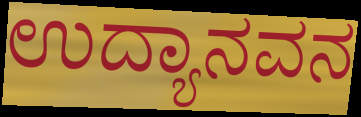
ಉದ್ಯಾನವನ